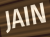
JAIN